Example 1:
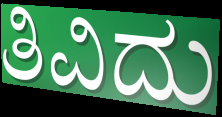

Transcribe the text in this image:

ತಿವಿದು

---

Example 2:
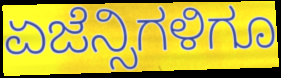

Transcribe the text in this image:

ಏಜೆನ್ಸಿಗಳಿಗೂ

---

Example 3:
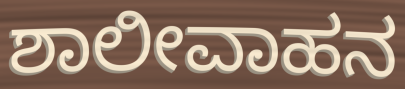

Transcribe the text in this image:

ಶಾಲೀವಾಹನ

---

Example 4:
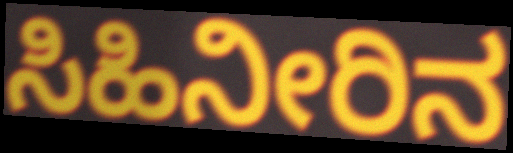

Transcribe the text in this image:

ಸಿಹಿನೀರಿನ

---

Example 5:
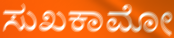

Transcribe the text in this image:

ಸುಖಕಾಮೋ